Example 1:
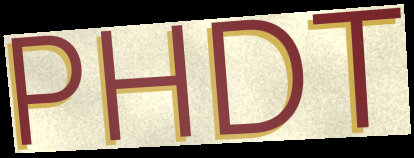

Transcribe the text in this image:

PHDT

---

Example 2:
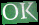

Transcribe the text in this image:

OK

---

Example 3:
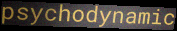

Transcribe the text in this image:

psychodynamic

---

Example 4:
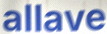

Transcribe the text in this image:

allave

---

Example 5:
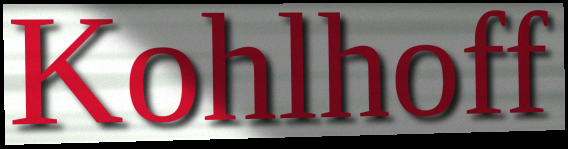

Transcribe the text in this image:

Kohlhoff